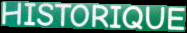
HISTORIQUE